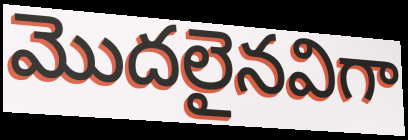
మొదలైనవిగా